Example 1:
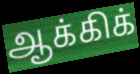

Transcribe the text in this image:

ஆக்கிக்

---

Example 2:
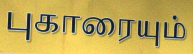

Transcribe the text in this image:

புகாரையும்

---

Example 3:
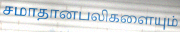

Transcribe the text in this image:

சமாதானபலிகளையும்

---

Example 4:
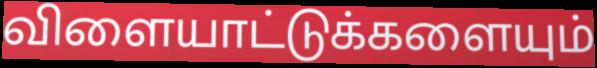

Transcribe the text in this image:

விளையாட்டுக்களையும்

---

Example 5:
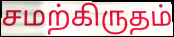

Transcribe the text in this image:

சமற்கிருதம்